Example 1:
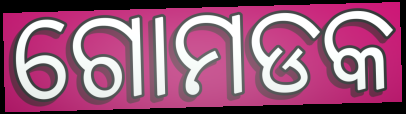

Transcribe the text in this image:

ଗୋମଡକ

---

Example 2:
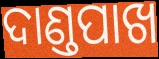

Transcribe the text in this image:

ଦାଣ୍ଡପାଖ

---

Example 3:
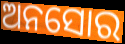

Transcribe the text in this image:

ଅନସୋର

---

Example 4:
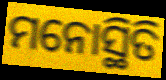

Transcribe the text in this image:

ମନୋସ୍ଥିତି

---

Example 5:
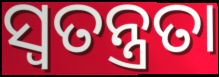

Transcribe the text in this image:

ସ୍ବତନ୍ତ୍ରତା